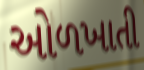
ઓળખાતી